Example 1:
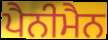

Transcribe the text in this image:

ਪੈਨੀਮੈਨ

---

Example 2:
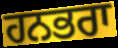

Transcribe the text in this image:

ਹਨਭਰਾ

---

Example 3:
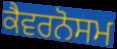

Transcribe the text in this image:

ਕੈਵਰਨੋਸਮ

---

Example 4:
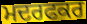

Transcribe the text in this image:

ਮਦਰਫਕਰ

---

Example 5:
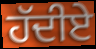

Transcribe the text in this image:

ਹੱਦੀਏ